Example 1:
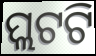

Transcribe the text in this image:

ପ୍ଲଟଟି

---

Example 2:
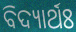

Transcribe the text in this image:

ବିଦ୍ୟାର୍ଥଃ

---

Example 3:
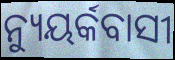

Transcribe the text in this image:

ନ୍ୟୁୟର୍କବାସୀ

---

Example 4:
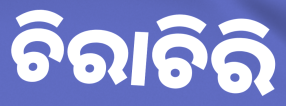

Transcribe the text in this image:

ଚିରାଚିରି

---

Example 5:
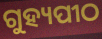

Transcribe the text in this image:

ଗୁହ୍ୟପୀଠ